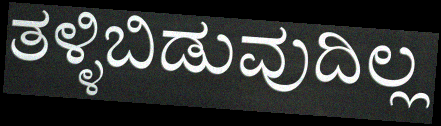
ತಳ್ಳಿಬಿಡುವುದಿಲ್ಲ